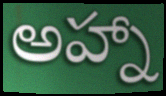
అహ్నా